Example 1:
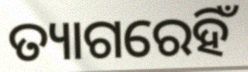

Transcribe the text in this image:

ତ୍ୟାଗରେହିଁ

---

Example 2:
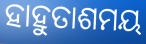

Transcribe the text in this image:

ହାହୁତାଶମୟ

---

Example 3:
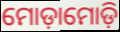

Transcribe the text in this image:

ମୋଡ଼ାମୋଡ଼ି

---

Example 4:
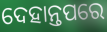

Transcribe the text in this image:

ଦେହାନ୍ତପରେ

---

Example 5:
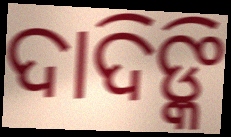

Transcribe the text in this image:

ଦାଦିଙ୍କି